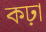
কঢ়া